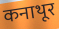
कनाथूर